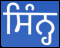
ਸਿੰਨ੍ਹ